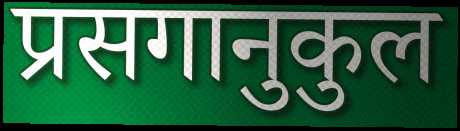
प्रसगानुकुल